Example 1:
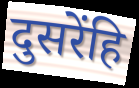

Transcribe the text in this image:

दुसरेंहि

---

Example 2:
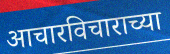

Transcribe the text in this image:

आचारविचाराच्या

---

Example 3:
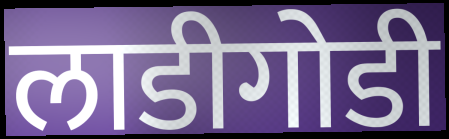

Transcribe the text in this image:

लाडीगोडी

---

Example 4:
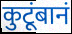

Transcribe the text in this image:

कुटूंबानं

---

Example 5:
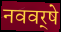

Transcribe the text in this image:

नववर्षे